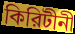
কিরিটীনী